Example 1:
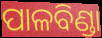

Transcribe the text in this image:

ପାଳବିଣ୍ଡା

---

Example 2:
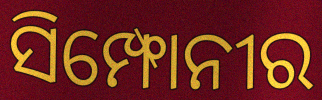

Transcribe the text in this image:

ସିମ୍ଫୋନୀର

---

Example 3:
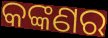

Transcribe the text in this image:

କଙ୍କଣର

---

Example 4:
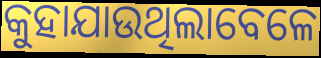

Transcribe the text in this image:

କୁହାଯାଉଥିଲାବେଳେ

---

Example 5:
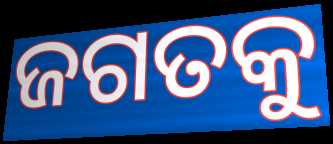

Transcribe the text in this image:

ଜଗତକୁ